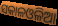
ସକାଳଓଳିଆ